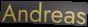
Andreas